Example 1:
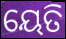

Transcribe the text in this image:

ୟେତି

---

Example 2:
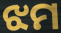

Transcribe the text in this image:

ଝମ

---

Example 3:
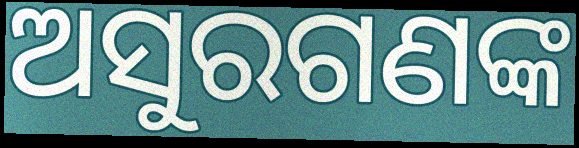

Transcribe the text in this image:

ଅସୁରଗଣଙ୍କ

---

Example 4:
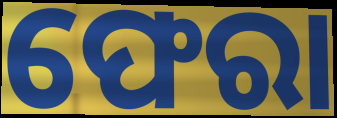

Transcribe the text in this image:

ଫେରା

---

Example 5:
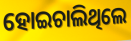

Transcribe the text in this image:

ହୋଇଚାଲିଥିଲେ